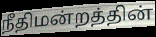
நீதிமன்றத்தின்